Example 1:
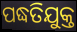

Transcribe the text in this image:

ପଦ୍ଧତିଯୁକ୍ତ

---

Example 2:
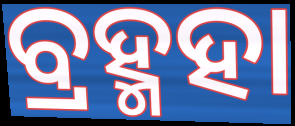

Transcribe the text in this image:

ବ୍ରହ୍ମହା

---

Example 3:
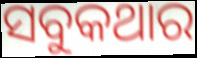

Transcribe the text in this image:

ସବୁକଥାର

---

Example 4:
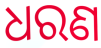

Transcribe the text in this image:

ଧରଣ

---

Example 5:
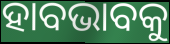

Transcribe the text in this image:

ହାବଭାବକୁ